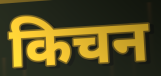
किचन